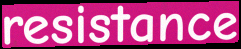
resistance